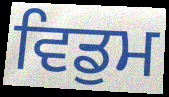
ਵਿਡੁਮ